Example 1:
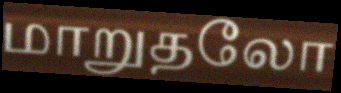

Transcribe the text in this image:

மாறுதலோ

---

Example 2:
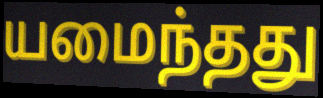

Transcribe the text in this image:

யமைந்தது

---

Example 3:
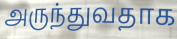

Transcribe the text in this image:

அருந்துவதாக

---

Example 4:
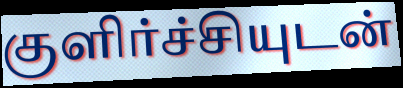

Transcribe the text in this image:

குளிர்ச்சியுடன்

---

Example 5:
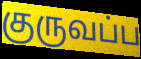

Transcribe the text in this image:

குருவப்ப